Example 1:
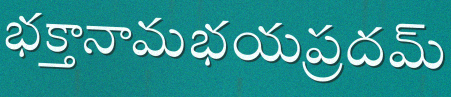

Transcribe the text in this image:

భక్తానామభయప్రదమ్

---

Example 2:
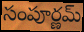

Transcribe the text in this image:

సంపూర్ణమ్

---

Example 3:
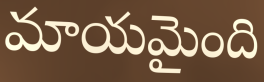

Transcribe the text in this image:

మాయమైంది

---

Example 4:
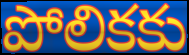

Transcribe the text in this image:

పోలికకు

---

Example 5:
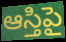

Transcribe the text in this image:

ఆస్తిపై